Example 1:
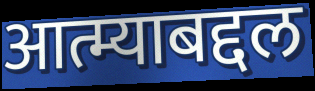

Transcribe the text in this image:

आत्म्याबद्दल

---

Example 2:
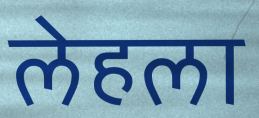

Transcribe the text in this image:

लेहला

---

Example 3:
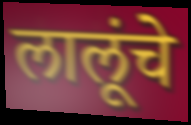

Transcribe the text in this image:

लालूंचे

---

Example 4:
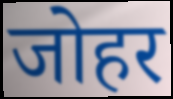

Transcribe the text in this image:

जोहर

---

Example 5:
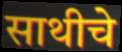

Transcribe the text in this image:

साथीचे